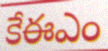
కేఈఎం